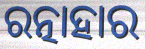
ରତ୍ନାହାର